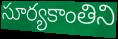
సూర్యకాంతిని